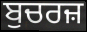
ਬੁਚਰਜ਼